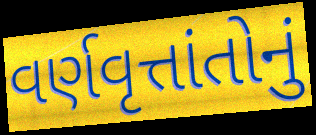
વર્ણવૃત્તાંતોનું